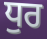
ਧੁਰ